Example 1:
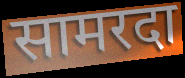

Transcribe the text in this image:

सामरदा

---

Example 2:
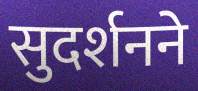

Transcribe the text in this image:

सुदर्शनने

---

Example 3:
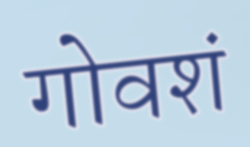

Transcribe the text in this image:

गोवशं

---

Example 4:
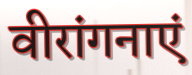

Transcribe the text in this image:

वीरांगनाएं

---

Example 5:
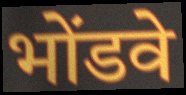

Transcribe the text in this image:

भोंडवे